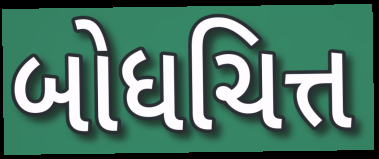
બોધચિત્ત